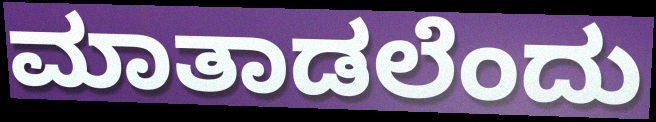
ಮಾತಾಡಲೆಂದು